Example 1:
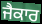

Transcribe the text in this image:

ਜੈਕਾਰ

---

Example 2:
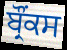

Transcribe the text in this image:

ਬ੍ਰੌਂਕਸ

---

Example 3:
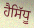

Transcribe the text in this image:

ਹੈਸਿੱਧੂ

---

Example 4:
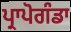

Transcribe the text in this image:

ਪ੍ਰਾਪੋਗੰਡਾ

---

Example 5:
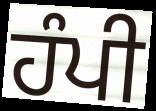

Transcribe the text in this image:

ਹੰਪੀ